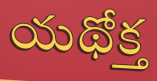
యథోక్త